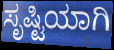
ಸೃಷ್ಟಿಯಾಗಿ